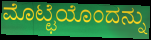
ಮೊಟ್ಟೆಯೊಂದನ್ನು